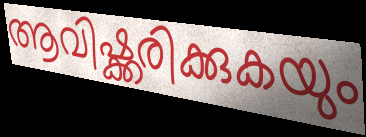
ആവിഷ്ക്കരിക്കുകയും